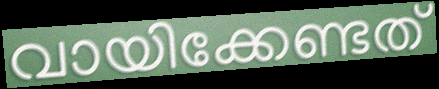
വായിക്കേണ്ടത്